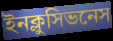
ইনক্লুসিভনেস